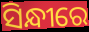
ସିନ୍ଧୀରେ